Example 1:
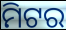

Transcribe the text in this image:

ମିଟର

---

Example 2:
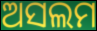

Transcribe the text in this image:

ଅସଲମ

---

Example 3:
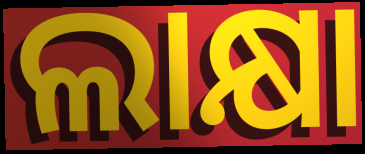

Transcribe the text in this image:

ଲାକ୍ଷା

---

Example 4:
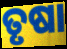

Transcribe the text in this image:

ତୃଷା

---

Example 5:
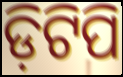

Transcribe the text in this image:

ଡ଼ିଟିପି